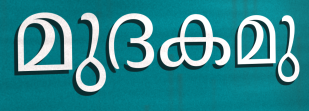
മുദകമു